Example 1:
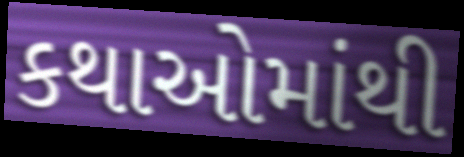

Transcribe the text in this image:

કથાઓમાંથી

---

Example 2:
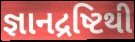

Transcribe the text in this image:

જ્ઞાનદ્રષ્ટિથી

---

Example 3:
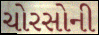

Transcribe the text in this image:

ચોરસોની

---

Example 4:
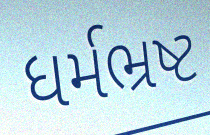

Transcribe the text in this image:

ધર્મભ્રષ્ટ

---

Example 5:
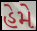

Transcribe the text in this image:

હેમે